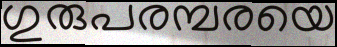
ഗുരുപരമ്പരയെ